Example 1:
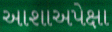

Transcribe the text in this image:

આશાઅપેક્ષા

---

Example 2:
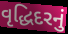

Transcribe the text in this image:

વૃદ્ધિદરનું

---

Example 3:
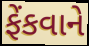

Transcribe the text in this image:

ફેંકવાને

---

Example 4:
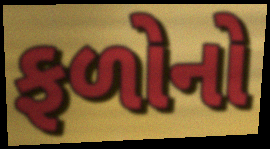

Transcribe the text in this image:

ફળોનો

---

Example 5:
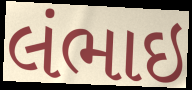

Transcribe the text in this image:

લંભાઇ